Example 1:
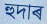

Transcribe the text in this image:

হুদাৰ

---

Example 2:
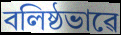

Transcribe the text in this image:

বলিষ্ঠভাৱে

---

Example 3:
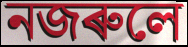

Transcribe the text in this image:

নজৰুলে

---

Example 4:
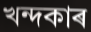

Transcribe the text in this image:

খন্দকাৰ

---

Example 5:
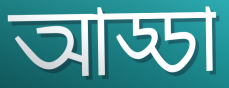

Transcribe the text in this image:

আড্ডা